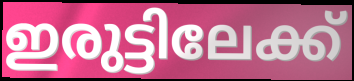
ഇരുട്ടിലേക്ക്